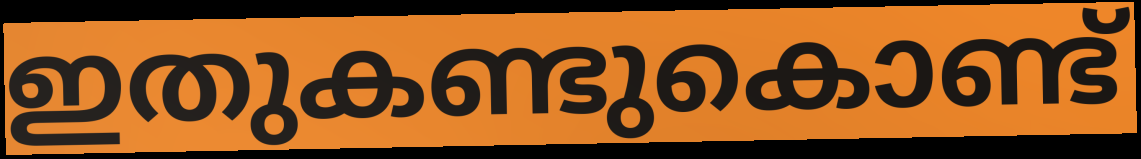
ഇതുകണ്ടുകൊണ്ട്